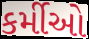
કર્મીઓ